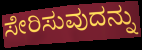
ಸೇರಿಸುವುದನ್ನು